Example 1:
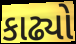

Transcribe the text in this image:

કાઢ્યો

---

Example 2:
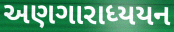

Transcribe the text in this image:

અણગારાધ્યયન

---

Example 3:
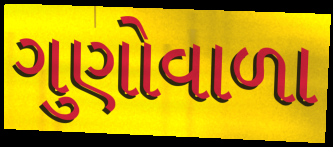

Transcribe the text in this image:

ગુણોવાળા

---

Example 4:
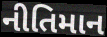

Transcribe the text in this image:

નીતિમાન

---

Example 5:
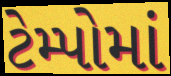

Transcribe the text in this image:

ટેમ્પોમાં